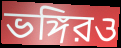
ভঙ্গিরও